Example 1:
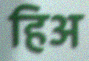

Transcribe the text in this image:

हिअ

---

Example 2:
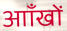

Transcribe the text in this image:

आाँखों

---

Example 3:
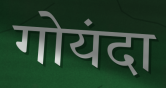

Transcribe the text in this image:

गोयंदा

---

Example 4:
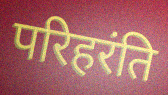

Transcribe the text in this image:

परिहरंति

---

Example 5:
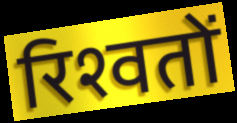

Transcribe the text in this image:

रिश्वतों